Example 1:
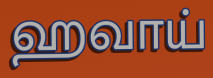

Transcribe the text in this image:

ஹவாய்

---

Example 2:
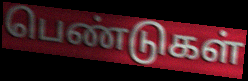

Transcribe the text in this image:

பெண்டுகள்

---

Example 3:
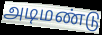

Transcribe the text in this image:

அடிமண்டு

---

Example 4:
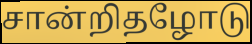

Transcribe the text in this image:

சான்றிதழோடு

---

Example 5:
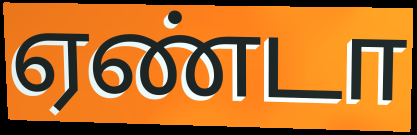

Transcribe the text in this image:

ஏண்டா